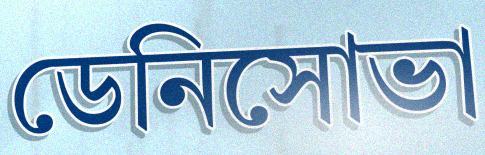
ডেনিসোভা